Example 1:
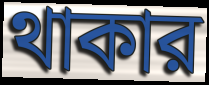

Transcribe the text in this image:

থাকার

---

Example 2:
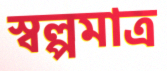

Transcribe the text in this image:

স্বল্পমাত্র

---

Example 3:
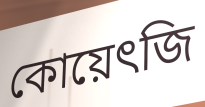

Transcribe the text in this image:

কোয়েৎজি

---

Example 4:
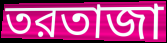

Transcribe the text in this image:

তরতাজা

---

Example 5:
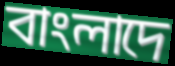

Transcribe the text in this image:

বাংলাদে